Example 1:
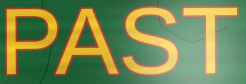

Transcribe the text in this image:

PAST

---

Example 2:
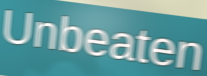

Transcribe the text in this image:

Unbeaten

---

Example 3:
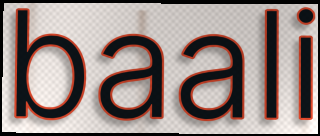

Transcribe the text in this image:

baali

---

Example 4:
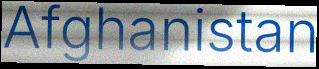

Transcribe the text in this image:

Afghanistan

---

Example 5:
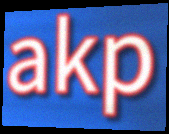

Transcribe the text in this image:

akp